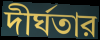
দীর্ঘতার